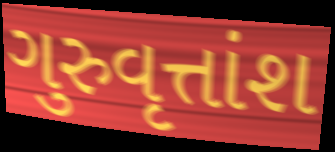
ગુરુવૃત્તાંશ